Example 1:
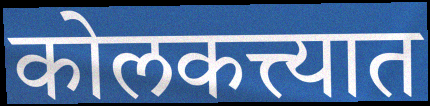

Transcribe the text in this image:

कोलकत्त्यात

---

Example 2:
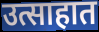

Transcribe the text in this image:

उत्साहात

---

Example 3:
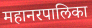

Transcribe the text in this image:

महानरपालिका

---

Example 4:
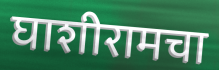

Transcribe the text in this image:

घाशीरामचा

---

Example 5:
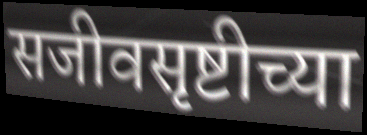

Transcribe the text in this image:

सजीवसृष्टीच्या